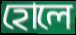
হোলে